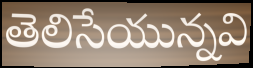
తెలిసేయున్నవి